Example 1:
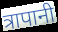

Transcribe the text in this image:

त्रापानी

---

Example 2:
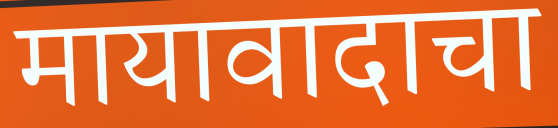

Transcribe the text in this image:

मायावादाचा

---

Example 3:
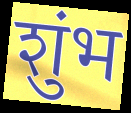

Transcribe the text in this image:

शुंभ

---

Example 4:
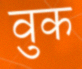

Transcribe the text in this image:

वुक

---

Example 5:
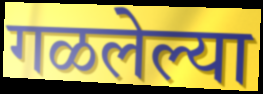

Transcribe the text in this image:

गळलेल्या